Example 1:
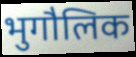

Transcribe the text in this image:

भुगौलिक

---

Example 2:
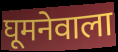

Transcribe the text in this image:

घूमनेवाला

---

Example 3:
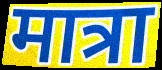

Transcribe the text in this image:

मात्रा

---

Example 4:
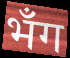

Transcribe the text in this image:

भँग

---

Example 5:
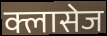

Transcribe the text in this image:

क्लासेज